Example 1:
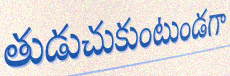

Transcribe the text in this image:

తుడుచుకుంటుండగా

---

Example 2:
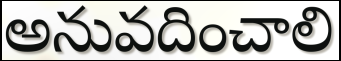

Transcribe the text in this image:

అనువదించాలి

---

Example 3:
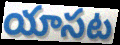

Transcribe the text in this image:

యాసట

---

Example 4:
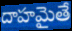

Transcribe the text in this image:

దాహమైతే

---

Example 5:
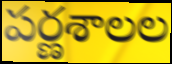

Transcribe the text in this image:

పర్ణశాలల